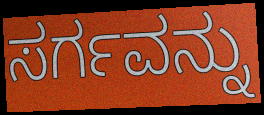
ಸರ್ಗವನ್ನು